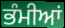
ਭੰਮੀਆਂ